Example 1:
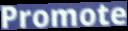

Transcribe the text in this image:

Promote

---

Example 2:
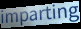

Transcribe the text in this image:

imparting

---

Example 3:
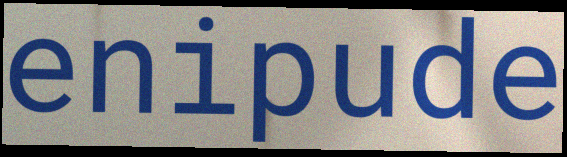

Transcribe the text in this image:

enipude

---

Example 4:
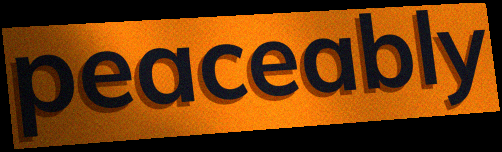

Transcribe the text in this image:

peaceably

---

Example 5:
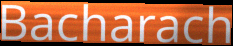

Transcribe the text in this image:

Bacharach